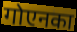
गोएनका